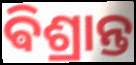
ଵିଶ୍ରାନ୍ତ